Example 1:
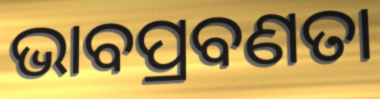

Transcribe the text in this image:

ଭାବପ୍ରବଣତା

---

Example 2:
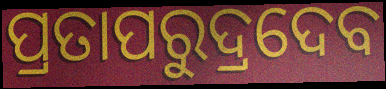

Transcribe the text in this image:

ପ୍ରତାପରୁଦ୍ରଦେବ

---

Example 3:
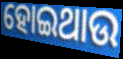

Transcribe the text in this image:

ହୋଇଥାଉ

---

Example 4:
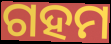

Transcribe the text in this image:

ଗହମ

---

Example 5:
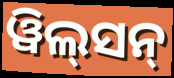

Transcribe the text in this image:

ୱିଲ୍‌ସନ୍